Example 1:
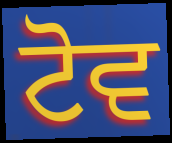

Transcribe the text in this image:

ਟੋਵ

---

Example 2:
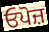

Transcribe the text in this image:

ਓਪੋਜ਼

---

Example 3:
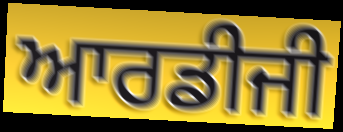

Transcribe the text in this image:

ਆਰਡੀਜੀ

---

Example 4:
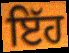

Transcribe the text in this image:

ਇੱਹ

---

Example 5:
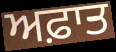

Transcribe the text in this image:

ਅਫ਼ਾਤ